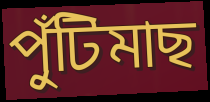
পুঁটিমাছ